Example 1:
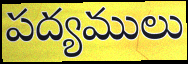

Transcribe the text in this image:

పద్యములు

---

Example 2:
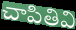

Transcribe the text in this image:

చాపితివి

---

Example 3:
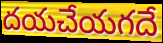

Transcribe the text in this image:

దయచేయగదే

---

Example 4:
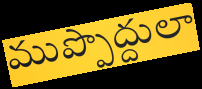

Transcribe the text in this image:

ముప్పొద్దులా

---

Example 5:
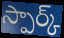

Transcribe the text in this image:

స్పార్క్